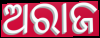
ଅରାଜ